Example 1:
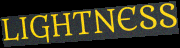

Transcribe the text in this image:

LIGHTNESS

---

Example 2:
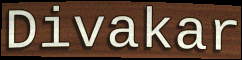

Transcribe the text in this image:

Divakar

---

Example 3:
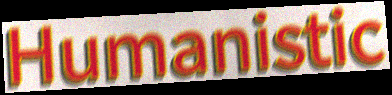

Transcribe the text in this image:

Humanistic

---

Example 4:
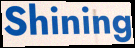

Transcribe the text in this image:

Shining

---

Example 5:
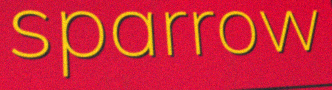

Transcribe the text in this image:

sparrow